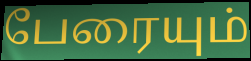
பேரையும்